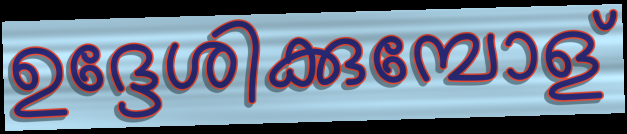
ഉദ്ദേശിക്കുമ്പോള്